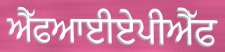
ਐੱਫਆਈਏਪੀਐੱਫ